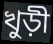
খুড়ী